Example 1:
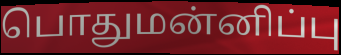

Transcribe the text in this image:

பொதுமன்னிப்பு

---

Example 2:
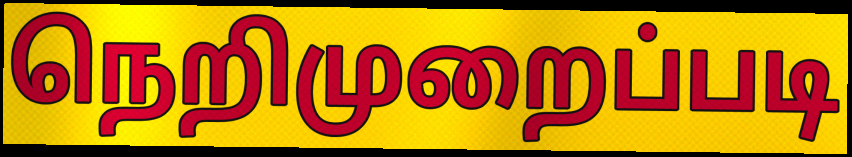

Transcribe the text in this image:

நெறிமுறைப்படி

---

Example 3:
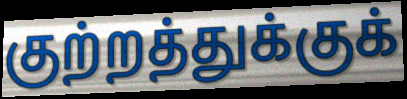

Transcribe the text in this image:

குற்றத்துக்குக்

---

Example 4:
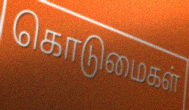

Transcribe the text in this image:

கொடுமைகள்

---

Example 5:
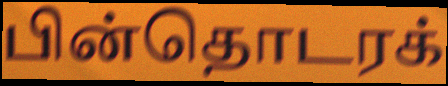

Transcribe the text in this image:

பின்தொடரக்